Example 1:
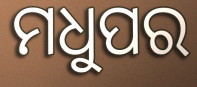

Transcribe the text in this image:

ମଧୁପର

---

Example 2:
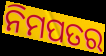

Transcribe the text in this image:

ନିମପତର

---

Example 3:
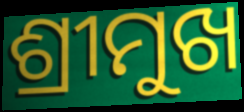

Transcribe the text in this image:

ଶ୍ରୀମୁଖ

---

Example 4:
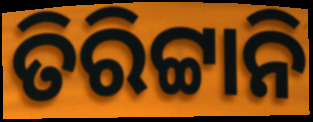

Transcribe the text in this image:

ତିରିଟ୍ଟାନି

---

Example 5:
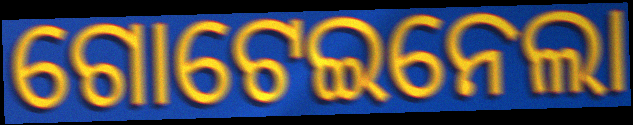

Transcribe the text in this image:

ଗୋଟେଇନେଲା